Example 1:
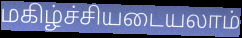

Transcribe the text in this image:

மகிழ்ச்சியடையலாம்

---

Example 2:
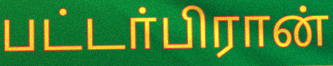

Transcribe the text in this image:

பட்டர்பிரான்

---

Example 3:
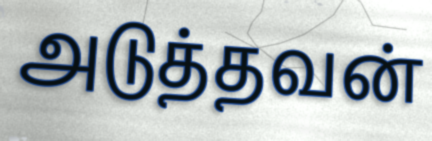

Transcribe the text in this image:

அடுத்தவன்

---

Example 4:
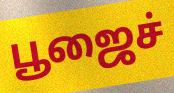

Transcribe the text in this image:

பூஜைச்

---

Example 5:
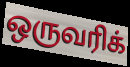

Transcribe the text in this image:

ஒருவரிக்